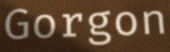
Gorgon